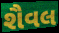
શૈવલ